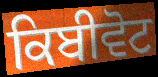
ਕਿਬੀਵੋਟ